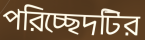
পরিচ্ছেদটির